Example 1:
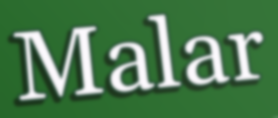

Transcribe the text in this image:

Malar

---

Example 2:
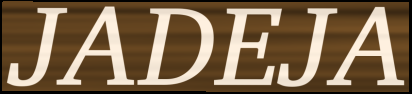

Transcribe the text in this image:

JADEJA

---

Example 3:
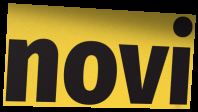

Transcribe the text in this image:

novi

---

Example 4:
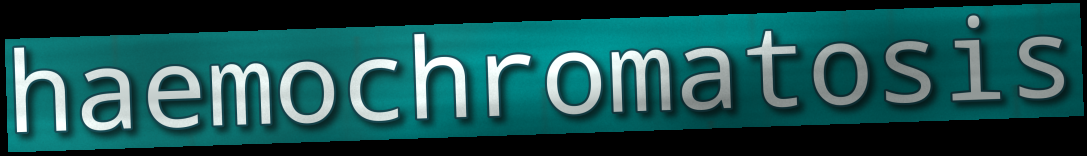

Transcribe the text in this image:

haemochromatosis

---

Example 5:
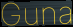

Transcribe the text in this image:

Guna